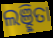
ଲଞ୍ଛିତା